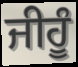
ਜੀਹੂੰ